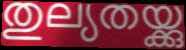
തുല്യതയ്ക്കു